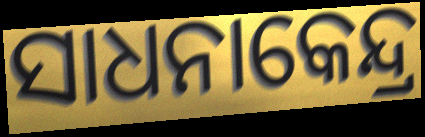
ସାଧନାକେନ୍ଦ୍ର